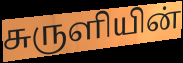
சுருளியின்